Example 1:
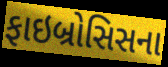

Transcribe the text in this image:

ફાઇબ્રોસિસના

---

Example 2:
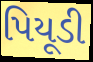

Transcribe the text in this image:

પિયૂડી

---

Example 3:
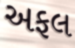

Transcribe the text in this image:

અફલ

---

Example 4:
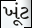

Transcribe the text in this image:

ખૂંટ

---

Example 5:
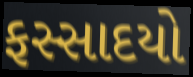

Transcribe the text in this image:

ફસ્સાદયો